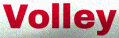
Volley